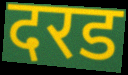
दरड